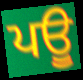
ਪਊ